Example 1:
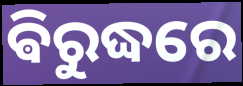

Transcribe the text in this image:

ଵିରୁଦ୍ଧରେ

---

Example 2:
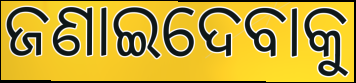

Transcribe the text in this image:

ଜଣାଇଦେବାକୁ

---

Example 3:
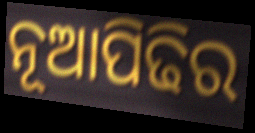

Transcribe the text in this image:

ନୂଆପିଢିର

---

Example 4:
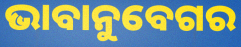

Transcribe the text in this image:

ଭାବାନୁବେଗର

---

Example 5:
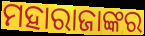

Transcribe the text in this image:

ମହାରାଜାଙ୍କର